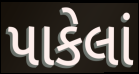
પાકેલાં